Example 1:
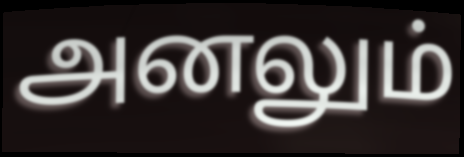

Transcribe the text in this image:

அனலும்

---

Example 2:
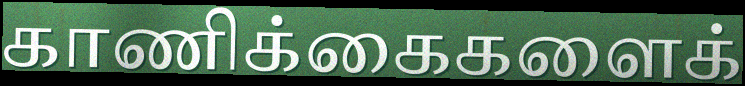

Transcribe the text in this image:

காணிக்கைகளைக்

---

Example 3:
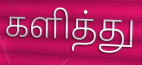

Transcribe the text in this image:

களித்து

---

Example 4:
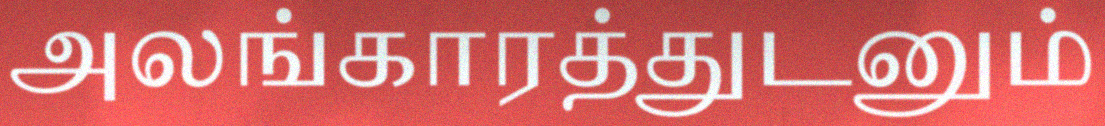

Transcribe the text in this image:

அலங்காரத்துடனும்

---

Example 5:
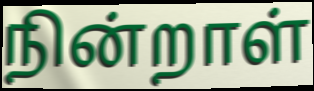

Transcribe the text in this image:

நின்றாள்